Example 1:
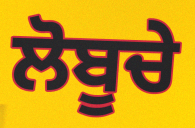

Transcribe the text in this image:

ਲੋਬੂਚੇ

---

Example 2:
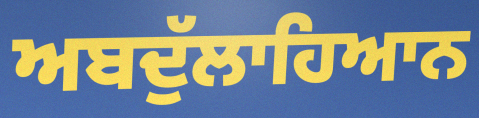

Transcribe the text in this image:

ਅਬਦੁੱਲਾਹਿਆਨ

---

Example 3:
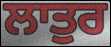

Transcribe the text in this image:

ਲਾਤੁਰ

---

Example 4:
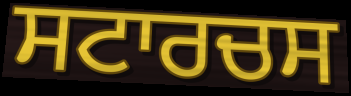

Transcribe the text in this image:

ਸਟਾਰਚਸ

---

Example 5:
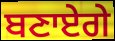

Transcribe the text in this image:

ਬਣਾਏਗੇ